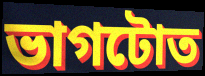
ভাগটোত